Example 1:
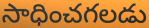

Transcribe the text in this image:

సాధించగలడు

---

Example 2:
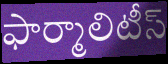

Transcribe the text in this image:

ఫార్మాలిటీస్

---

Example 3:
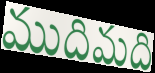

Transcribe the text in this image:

ముదిమది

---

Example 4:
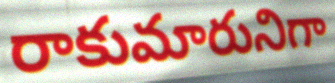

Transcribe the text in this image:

రాకుమారునిగా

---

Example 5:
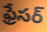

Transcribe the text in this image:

ఫ్రేసర్